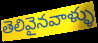
తెలివైనవాళ్ళు